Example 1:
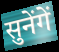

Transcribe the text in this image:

सुनेंगें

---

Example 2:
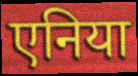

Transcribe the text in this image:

एनिया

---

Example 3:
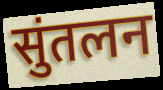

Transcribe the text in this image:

सुंतलन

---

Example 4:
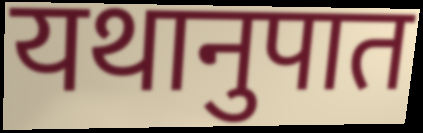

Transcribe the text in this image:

यथानुपात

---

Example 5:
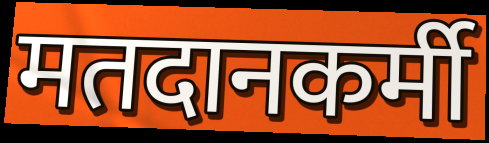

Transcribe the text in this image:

मतदानकर्मी